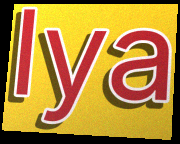
Iya